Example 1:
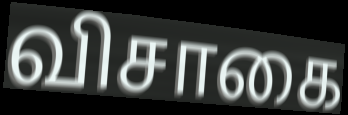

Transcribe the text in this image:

விசாகை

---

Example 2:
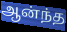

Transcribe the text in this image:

ஆன்ந்த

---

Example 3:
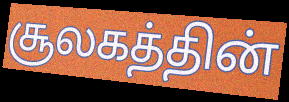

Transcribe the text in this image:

சூலகத்தின்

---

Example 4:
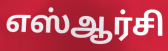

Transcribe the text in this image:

எஸ்ஆர்சி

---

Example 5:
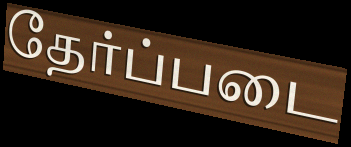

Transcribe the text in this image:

தேர்ப்படை